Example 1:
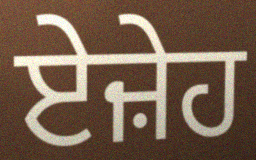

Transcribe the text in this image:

ਏਜ਼ੇਹ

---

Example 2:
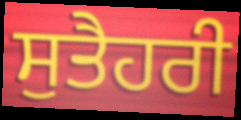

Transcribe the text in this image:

ਸੁਤੈਹਰੀ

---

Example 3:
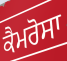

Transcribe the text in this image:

ਕੈਮਰੋਸਾ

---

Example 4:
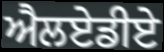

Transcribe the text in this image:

ਐਲਏਡੀਏ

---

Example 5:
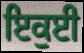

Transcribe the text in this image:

ਇਕੁਈ